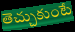
తెచ్చుకుంటే